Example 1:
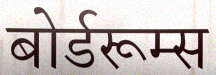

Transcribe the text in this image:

बोर्डरूम्स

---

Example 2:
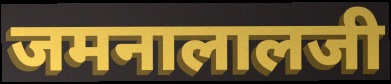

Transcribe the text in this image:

जमनालालजी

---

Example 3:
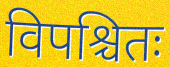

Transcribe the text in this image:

विपश्चितः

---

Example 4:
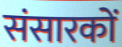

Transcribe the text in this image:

संसारकों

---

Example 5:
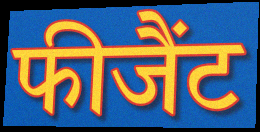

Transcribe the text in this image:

फीजैंट